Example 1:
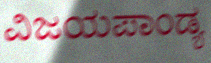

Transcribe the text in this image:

ವಿಜಯಪಾಂಡ್ಯ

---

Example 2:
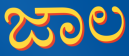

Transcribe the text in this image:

ಜಾಲ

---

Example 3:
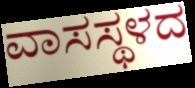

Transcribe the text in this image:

ವಾಸಸ್ಥಳದ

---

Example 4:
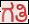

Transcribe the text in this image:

ಗತಿ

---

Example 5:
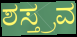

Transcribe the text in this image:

ಶಸ್ತ್ರವ